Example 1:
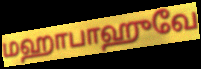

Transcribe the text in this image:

மஹாபாஹுவே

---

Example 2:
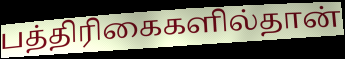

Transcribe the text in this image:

பத்திரிகைகளில்தான்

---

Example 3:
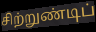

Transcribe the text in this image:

சிற்றுண்டிப்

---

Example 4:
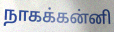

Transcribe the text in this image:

நாகக்கன்னி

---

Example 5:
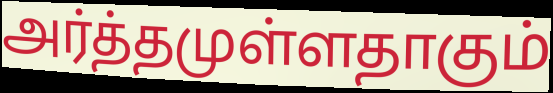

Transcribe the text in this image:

அர்த்தமுள்ளதாகும்